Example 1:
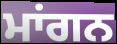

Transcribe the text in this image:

ਮਾਂਗਨ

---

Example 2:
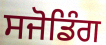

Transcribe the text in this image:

ਸਜੋਡਿੰਗ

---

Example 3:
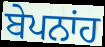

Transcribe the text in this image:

ਬੇਪਨਾਂਹ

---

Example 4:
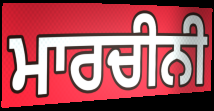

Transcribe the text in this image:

ਮਾਰਚੀਨੀ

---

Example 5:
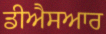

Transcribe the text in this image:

ਡੀਐਸਆਰ